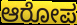
ಆರೋಪ